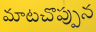
మాటచొప్పున